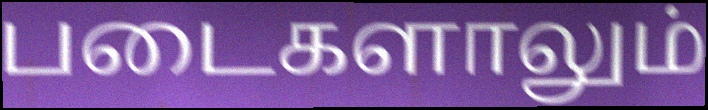
படைகளாலும்